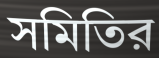
সমিতির